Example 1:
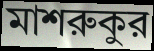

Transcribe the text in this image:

মাশরুকুর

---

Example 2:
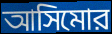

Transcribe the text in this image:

আসিমোর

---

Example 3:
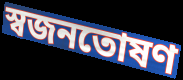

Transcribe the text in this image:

স্বজনতোষণ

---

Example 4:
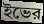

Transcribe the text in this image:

ইভের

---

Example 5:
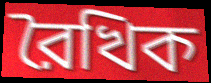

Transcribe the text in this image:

রৈখিক